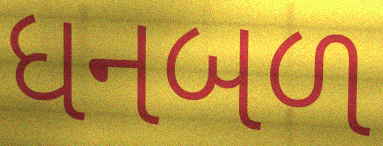
ધનબળ